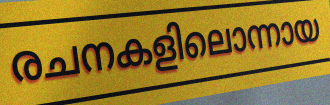
രചനകളിലൊന്നായ